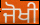
ਜੋਖੀ